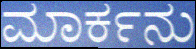
ಮಾರ್ಕನು